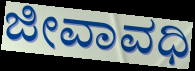
ಜೀವಾವಧಿ